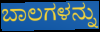
ಬಾಲಗಳನ್ನು